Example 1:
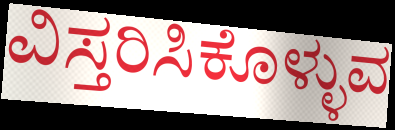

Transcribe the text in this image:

ವಿಸ್ತರಿಸಿಕೊಳ್ಳುವ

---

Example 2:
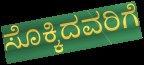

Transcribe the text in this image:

ಸೊಕ್ಕಿದವರಿಗೆ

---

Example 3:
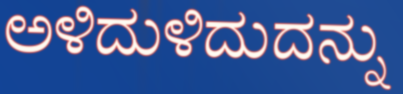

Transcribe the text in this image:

ಅಳಿದುಳಿದುದನ್ನು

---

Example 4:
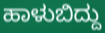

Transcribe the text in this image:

ಹಾಳುಬಿದ್ದು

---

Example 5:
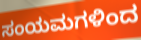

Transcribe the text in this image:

ಸಂಯಮಗಳಿಂದ